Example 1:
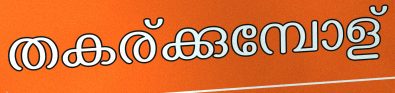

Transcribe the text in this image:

തകര്ക്കുമ്പോള്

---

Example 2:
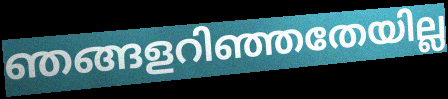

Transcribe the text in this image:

ഞങ്ങളറിഞ്ഞതേയില്ല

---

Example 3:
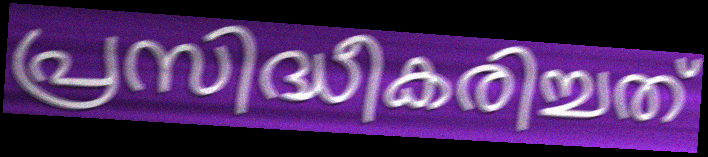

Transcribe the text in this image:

പ്രസിദ്ധീകരിച്ചത്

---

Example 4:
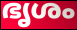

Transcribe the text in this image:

ഭൃശം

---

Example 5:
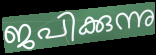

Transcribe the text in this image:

ജപിക്കുന്നു